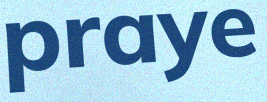
praye